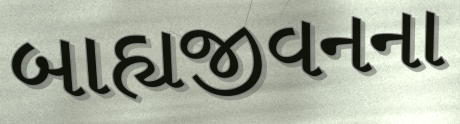
બાહ્યજીવનના